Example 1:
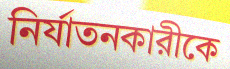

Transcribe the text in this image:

নির্যাতনকারীকে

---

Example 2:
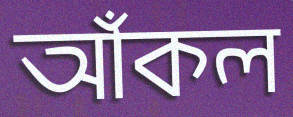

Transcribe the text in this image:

আঁকল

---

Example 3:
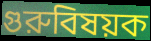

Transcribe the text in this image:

গুরুবিষয়ক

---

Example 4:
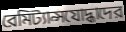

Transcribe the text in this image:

রেমিট্যান্সযোদ্ধাদের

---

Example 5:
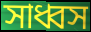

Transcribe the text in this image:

সাধ্বস